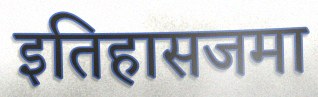
इतिहासजमा